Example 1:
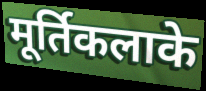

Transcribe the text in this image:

मूर्तिकलाके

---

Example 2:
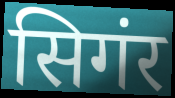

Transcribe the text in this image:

सिगंर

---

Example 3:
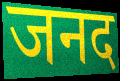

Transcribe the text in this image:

जनद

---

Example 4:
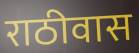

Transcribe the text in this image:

राठीवास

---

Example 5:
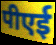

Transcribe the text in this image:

पीएई